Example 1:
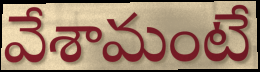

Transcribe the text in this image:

వేశామంటే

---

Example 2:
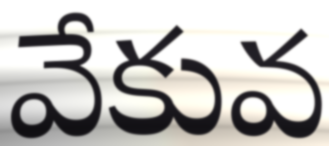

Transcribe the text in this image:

వేకువ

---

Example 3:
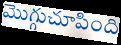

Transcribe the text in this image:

మొగ్గుచూపింది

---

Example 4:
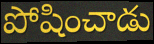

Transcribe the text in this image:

పోషించాడు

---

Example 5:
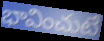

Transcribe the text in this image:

భావించుటే